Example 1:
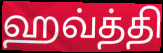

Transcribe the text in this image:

ஹவ்த்தி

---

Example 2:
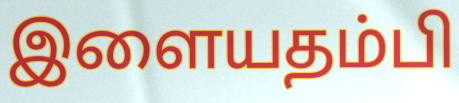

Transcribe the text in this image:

இளையதம்பி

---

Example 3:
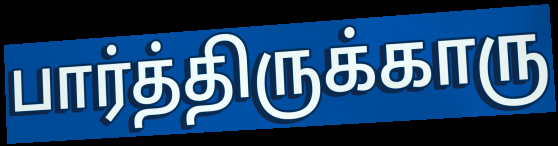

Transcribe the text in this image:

பார்த்திருக்காரு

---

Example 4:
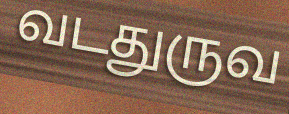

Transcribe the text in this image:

வடதுருவ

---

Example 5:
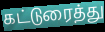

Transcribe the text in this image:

கட்டுரைத்து